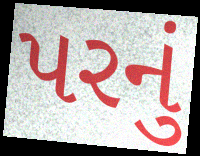
પરનું